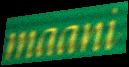
maani